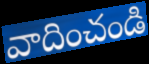
వాదించండి